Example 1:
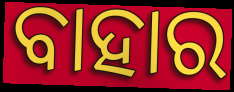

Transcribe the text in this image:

ବାହାର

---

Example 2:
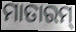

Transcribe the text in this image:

ମାତାରମ୍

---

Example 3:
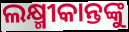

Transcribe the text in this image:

ଲକ୍ଷ୍ମୀକାନ୍ତଙ୍କୁ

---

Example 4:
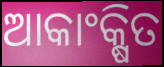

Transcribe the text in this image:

ଆକାଂକ୍ଷିତ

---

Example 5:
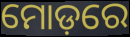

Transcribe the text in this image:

ମୋଡ଼ରେ